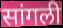
सांगली